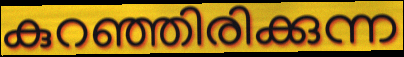
കുറഞ്ഞിരിക്കുന്ന